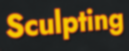
Sculpting